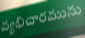
వ్యభిచారమును